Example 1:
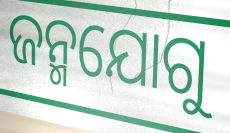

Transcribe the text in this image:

ଜନ୍ମଯୋଗୁ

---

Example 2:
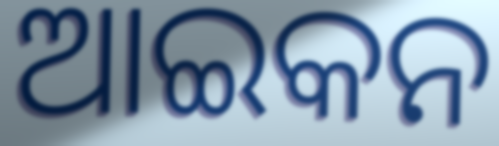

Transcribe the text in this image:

ଆଇକନ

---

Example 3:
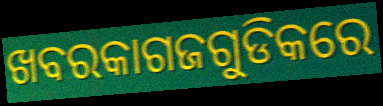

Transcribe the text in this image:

ଖବରକାଗଜଗୁଡିକରେ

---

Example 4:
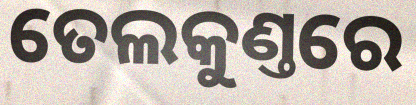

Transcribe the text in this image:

ତେଲକୁଣ୍ତରେ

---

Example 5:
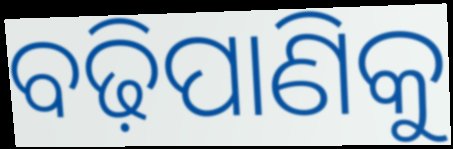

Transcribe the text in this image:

ବଢ଼ିପାଣିକୁ